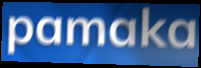
pamaka